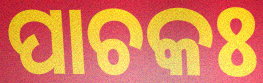
ପାଚକଃ